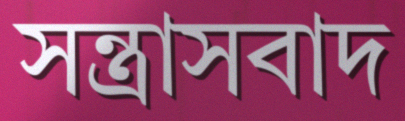
সন্ত্ৰাসবাদ